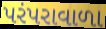
પરંપરાવાળા